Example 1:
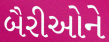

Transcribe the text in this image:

બૈરીઓને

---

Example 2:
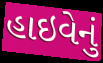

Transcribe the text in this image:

હાઇવેનું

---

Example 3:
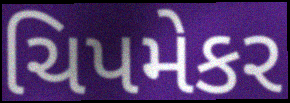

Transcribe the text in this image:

ચિપમેકર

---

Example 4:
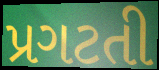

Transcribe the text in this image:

પ્રગટતી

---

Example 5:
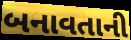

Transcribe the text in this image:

બનાવતાની